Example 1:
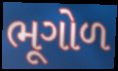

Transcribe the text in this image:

ભૂગોળ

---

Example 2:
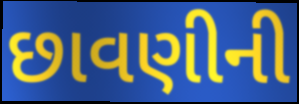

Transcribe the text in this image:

છાવણીની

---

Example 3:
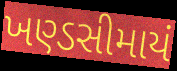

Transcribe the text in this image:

ખણ્ડસીમાયં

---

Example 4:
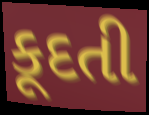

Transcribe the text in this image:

કૂદતી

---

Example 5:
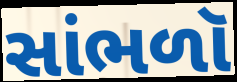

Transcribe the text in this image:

સાંભળૉ